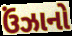
ઉંઝાનો